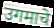
उगमाचे